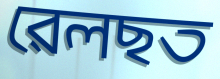
ৱেলছত